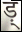
ड़्